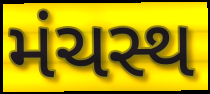
મંચસ્થ